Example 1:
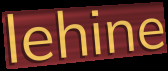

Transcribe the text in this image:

lehine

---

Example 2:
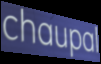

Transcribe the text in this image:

chaupal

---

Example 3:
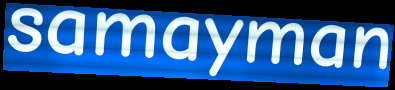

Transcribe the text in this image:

samayman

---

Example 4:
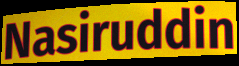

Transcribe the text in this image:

Nasiruddin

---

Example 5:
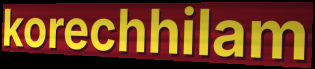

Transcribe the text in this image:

korechhilam